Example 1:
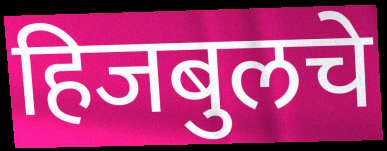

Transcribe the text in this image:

हिजबुलचे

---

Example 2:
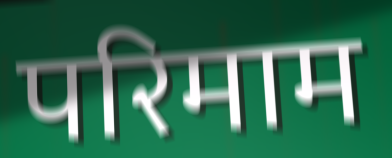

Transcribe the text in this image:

परिमाम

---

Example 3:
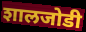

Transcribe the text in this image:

शालजोडी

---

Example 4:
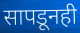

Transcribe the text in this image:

सापडूनही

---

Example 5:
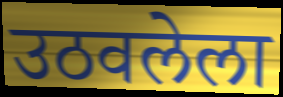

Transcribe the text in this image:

उठवलेला